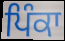
ਪਿੰਕਾ